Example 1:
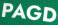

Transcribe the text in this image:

PAGD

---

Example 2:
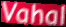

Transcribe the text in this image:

Vahal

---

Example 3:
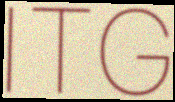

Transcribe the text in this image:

ITG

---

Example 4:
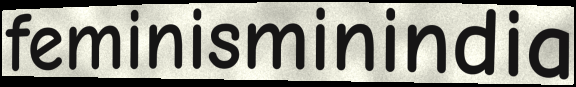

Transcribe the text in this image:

feminisminindia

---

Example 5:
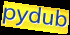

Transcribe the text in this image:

pydub